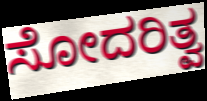
ಸೋದರಿತ್ವ